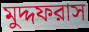
মুদ্দফরাস